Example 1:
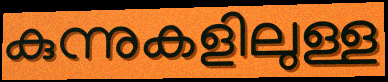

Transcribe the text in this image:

കുന്നുകളിലുള്ള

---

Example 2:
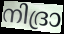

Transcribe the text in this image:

നിദ്രാ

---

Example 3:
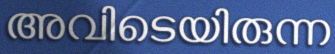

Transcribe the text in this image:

അവിടെയിരുന്ന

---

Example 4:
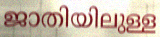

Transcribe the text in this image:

ജാതിയിലുള്ള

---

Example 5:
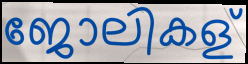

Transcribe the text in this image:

ജോലികള്